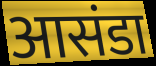
आसंडा